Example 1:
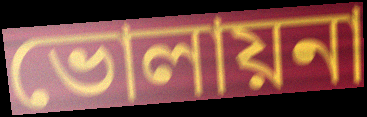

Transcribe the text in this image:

ভোলায়না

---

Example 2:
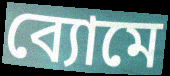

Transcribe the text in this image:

ব্যোমে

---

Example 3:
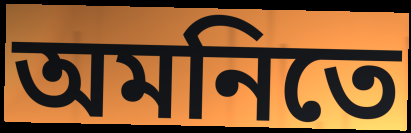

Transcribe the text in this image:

অমনিতে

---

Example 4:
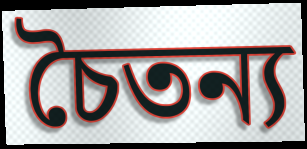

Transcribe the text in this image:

চৈতন্য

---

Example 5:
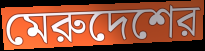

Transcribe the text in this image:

মেরুদেশের